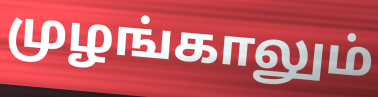
முழங்காலும்